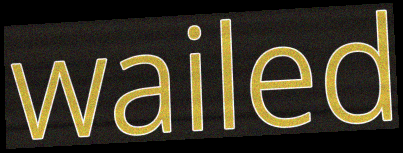
wailed